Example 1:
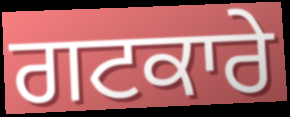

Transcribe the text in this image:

ਗਟਕਾਰੇ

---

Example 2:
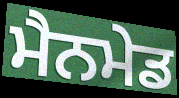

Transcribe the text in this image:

ਮੈਨਮੇਡ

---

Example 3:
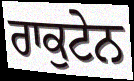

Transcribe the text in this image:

ਰਾਕੁਟੇਨ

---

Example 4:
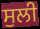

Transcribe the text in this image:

ਸੁਲੀ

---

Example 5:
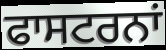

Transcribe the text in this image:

ਫਾਸਟਰਨਾਂ